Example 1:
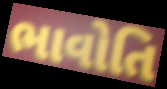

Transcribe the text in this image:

ભાવોતિ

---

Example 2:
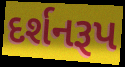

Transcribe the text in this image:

દર્શનરૂપ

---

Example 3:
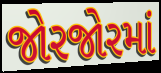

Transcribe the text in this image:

જોરજોરમાં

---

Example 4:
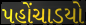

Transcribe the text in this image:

પહોંચાડયો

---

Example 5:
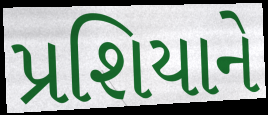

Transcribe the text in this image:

પ્રશિયાને